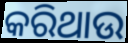
କରିଥାଉ